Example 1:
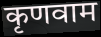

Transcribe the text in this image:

कृणवाम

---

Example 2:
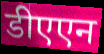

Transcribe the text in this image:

डीएएन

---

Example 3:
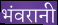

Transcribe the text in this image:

भंवरानी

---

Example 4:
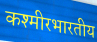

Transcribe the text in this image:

कश्मीरभारतीय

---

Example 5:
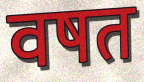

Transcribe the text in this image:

वषत